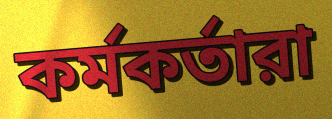
কর্মকর্তারা